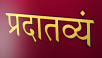
प्रदातव्यं